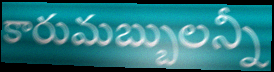
కారుమబ్బులన్నీ